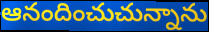
ఆనందించుచున్నాను